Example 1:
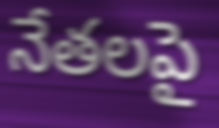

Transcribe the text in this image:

నేతలపై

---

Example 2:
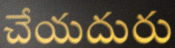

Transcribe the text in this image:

చేయదురు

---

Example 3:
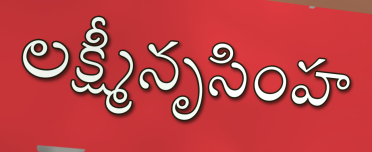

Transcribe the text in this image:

లక్ష్మీనృసింహ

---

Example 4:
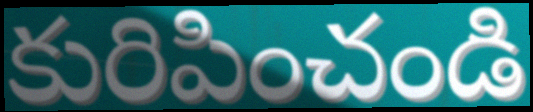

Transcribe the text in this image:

కురిపించండి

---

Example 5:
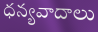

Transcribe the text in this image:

ధన్యవాదాలు